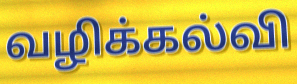
வழிக்கல்வி